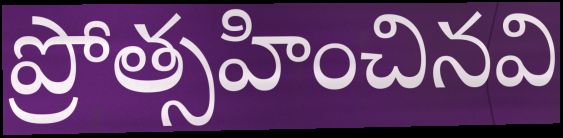
ప్రోత్సహించినవి